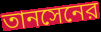
তানসেনের